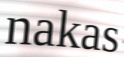
nakas